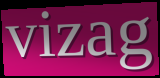
vizag